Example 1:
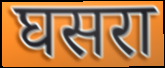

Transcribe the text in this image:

घसरा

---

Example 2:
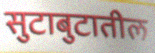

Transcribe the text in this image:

सुटाबुटातील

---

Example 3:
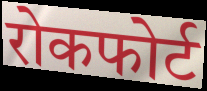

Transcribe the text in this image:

रोकफोर्ट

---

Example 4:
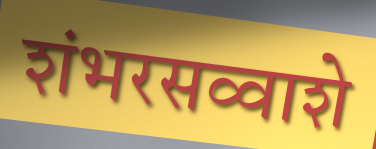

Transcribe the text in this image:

शंभरसव्वाशे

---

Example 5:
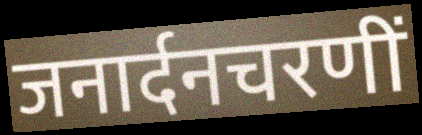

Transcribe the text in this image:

जनार्दनचरणीं